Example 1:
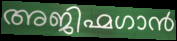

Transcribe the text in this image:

അജിഹ്മഗാൻ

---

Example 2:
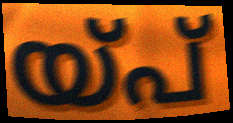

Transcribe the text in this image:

യ്പ്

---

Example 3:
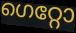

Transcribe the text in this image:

ഗെറ്റോ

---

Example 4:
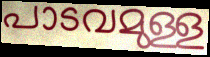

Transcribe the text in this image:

പാടവമുള്ള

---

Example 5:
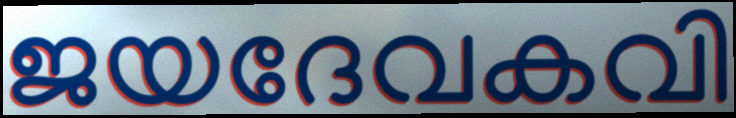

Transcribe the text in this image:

ജയദേവകവി